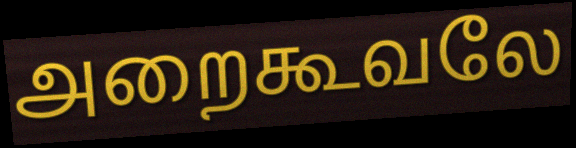
அறைகூவலே